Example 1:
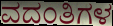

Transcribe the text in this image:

ವದಂತಿಗಳ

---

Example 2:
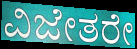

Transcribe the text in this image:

ವಿಜೇತರೇ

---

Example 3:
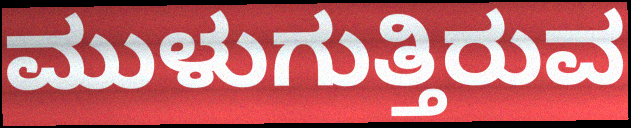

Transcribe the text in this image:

ಮುಳುಗುತ್ತಿರುವ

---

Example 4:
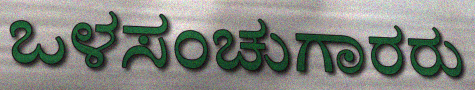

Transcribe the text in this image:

ಒಳಸಂಚುಗಾರರು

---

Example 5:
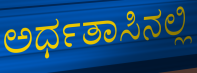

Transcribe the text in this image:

ಅರ್ಧತಾಸಿನಲ್ಲಿ